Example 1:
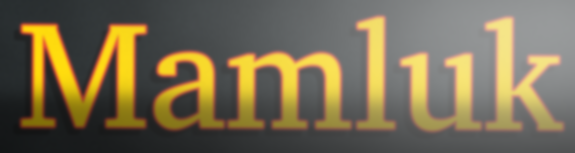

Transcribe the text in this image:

Mamluk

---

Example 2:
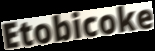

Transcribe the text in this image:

Etobicoke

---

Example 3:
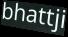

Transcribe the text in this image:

bhattji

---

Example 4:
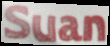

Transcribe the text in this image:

Suan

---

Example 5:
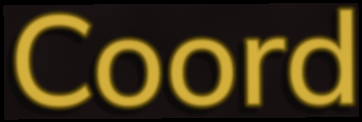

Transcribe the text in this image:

Coord